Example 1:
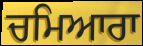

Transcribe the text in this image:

ਚਮਿਆਰਾ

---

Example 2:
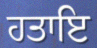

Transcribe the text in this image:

ਹਤਾਇ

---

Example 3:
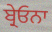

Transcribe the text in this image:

ਬ੍ਰੇਓਨਾ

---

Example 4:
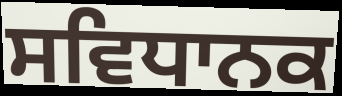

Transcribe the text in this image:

ਸਵਿਧਾਨਕ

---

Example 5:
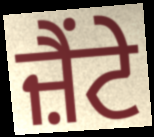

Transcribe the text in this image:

ਜ਼ੈਂਟੇ